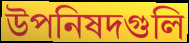
উপনিষদগুলি